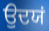
ਉਦਯਂ